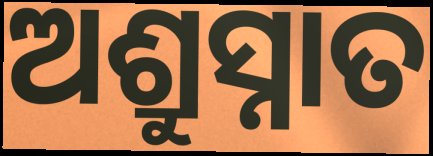
ଅଶ୍ରୁସ୍ନାତ